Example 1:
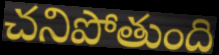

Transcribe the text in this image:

చనిపోతుంది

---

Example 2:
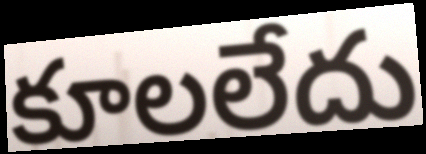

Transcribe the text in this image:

కూలలేదు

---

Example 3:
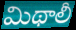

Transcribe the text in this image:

మిథాలీ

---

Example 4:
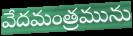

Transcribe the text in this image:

వేదమంత్రమును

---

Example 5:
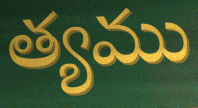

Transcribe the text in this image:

త్యము